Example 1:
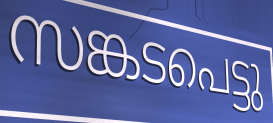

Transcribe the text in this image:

സങ്കടപെട്ടു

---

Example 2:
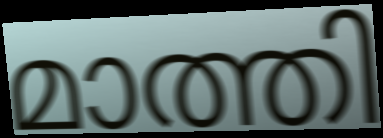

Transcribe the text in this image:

മാത്തി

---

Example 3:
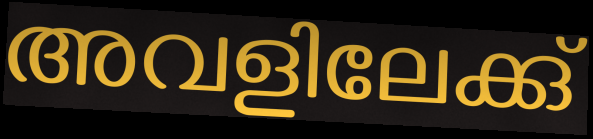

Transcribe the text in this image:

അവളിലേക്കു്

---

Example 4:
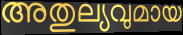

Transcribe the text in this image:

അതുല്യവുമായ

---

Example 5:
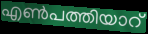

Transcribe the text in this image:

എൺപത്തിയാറ്